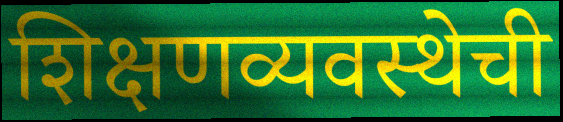
शिक्षणव्यवस्थेची